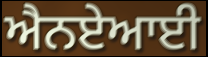
ਐਨਏਆਈ